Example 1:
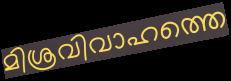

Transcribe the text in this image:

മിശ്രവിവാഹത്തെ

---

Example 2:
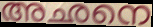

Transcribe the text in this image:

അഛനെ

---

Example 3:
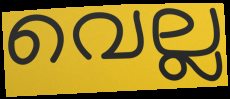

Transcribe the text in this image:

വെല്ല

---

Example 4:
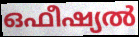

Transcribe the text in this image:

ഒഫീഷ്യൽ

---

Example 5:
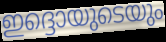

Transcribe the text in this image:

ഇദ്ദൊയുടെയും